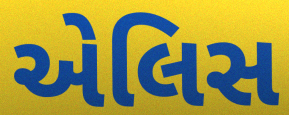
એલિસ